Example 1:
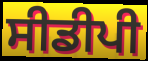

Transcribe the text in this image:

ਸੀਡੀਪੀ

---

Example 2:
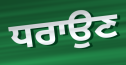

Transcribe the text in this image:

ਧਰਾਉਣ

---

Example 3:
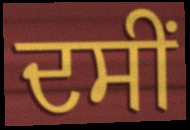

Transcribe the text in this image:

ਦਸੀਂ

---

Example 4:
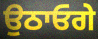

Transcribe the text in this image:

ਉਠਾਓਗੇ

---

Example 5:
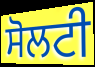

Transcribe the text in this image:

ਸੋਲਟੀ